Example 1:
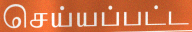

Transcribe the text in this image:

செய்யப்பட்ட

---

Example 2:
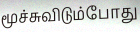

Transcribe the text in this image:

மூச்சுவிடும்போது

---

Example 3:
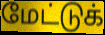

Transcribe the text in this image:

மேட்டுக்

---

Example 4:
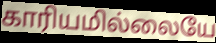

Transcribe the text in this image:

காரியமில்லையே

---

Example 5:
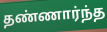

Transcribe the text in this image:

தண்ணார்ந்த